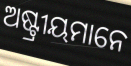
ଅଷ୍ଟ୍ରୀୟମାନେ